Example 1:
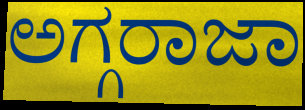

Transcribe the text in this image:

ಅಗ್ಗರಾಜಾ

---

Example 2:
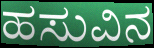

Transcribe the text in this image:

ಹಸುವಿನ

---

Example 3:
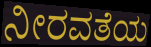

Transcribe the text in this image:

ನೀರವತೆಯ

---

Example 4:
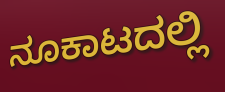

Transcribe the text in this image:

ನೂಕಾಟದಲ್ಲಿ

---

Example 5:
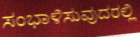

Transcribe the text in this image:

ಸಂಭಾಳಿಸುವುದರಲ್ಲಿ